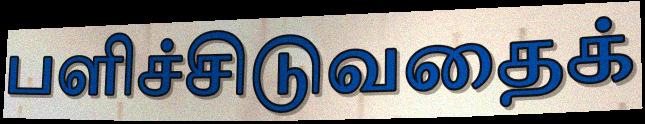
பளிச்சிடுவதைக்